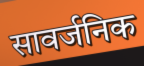
सावर्जनिक